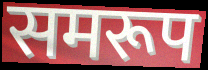
समरूप